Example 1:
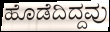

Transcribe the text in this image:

ಹೊಡೆದಿದ್ದವು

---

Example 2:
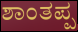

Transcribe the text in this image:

ಶಾಂತಪ್ಪ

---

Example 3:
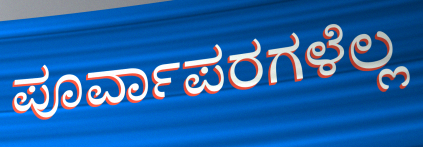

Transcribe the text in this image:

ಪೂರ್ವಾಪರಗಳೆಲ್ಲ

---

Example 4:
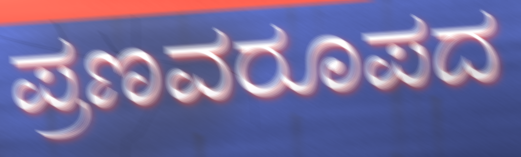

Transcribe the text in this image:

ಪ್ರಣವರೂಪದ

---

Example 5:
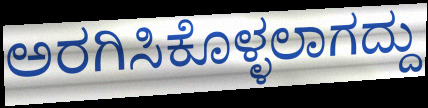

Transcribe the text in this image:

ಅರಗಿಸಿಕೊಳ್ಳಲಾಗದ್ದು